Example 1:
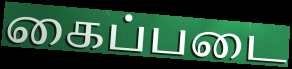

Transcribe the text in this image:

கைப்படை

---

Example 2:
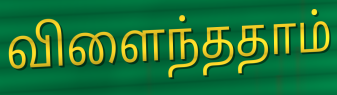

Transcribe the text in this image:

விளைந்ததாம்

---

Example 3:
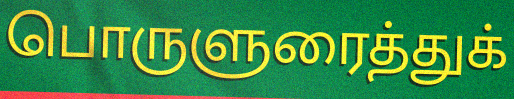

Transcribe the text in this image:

பொருளுரைத்துக்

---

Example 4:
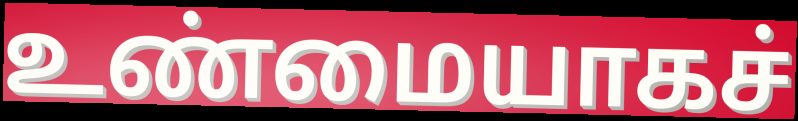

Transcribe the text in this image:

உண்மையாகச்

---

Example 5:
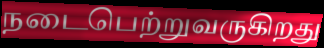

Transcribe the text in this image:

நடைபெற்றுவருகிறது